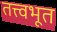
तत्त्वभूत